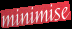
minimise